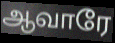
ஆவாரே